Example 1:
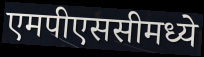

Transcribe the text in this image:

एमपीएससीमध्ये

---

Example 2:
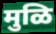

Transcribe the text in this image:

मुळि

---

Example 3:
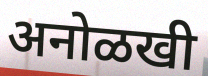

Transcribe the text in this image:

अनोळखी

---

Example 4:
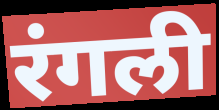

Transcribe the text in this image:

रंगली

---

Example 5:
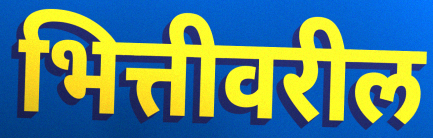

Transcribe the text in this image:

भित्तीवरील